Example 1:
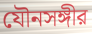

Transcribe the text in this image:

যৌনসঙ্গীর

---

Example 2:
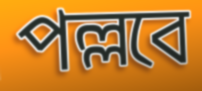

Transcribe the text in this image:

পল্লবে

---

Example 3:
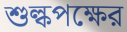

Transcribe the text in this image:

শুল্কপক্ষের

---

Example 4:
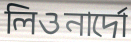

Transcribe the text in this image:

লিওনার্দো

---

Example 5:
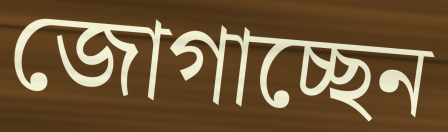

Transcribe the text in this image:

জোগাচ্ছেন